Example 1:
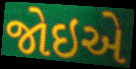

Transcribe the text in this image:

જોઇએ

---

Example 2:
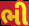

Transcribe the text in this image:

ભી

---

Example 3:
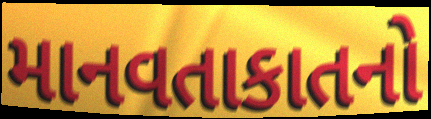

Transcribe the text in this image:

માનવતાકાતનો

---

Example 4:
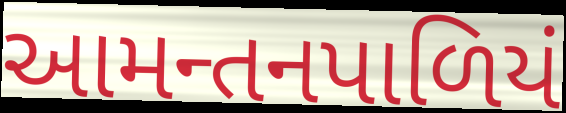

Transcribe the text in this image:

આમન્તનપાળિયં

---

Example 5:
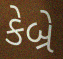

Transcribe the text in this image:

કેબ્રે